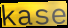
kase